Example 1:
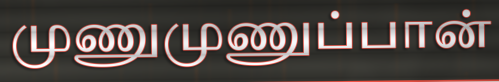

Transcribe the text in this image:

முணுமுணுப்பான்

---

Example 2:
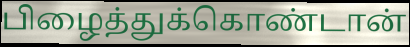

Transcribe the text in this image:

பிழைத்துக்கொண்டான்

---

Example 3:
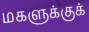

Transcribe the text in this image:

மகளுக்குக்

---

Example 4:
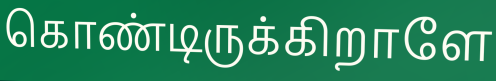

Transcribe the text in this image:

கொண்டிருக்கிறாளே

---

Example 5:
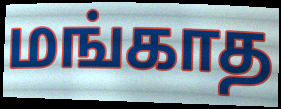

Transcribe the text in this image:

மங்காத